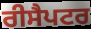
ਰੀਸੈਪਟਰ